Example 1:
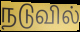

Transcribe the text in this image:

நடுவில்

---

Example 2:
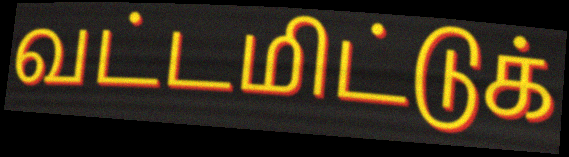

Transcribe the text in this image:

வட்டமிட்டுக்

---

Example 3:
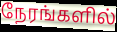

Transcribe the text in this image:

நேரங்களில்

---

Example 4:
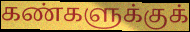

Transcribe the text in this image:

கண்களுக்குக்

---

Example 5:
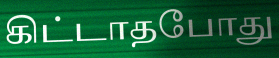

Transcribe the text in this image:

கிட்டாதபோது